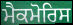
ਮੈਕਮੋਰਿਸ